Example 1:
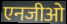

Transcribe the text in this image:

एनजीओ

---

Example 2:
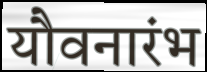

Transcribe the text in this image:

यौवनारंभ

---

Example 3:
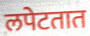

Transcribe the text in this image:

लपेटतात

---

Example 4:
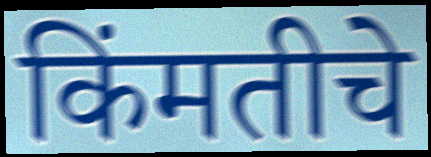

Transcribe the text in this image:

किंमतीचे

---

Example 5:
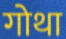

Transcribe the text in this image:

गोथा